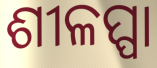
ଶୀଳପ୍ପା